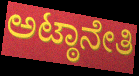
ಅಟ್ಠಾನೇತಿ